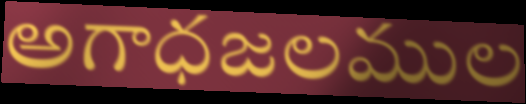
అగాధజలముల